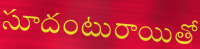
సూదంటురాయితో